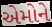
એમોને